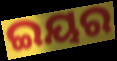
ଇୟର